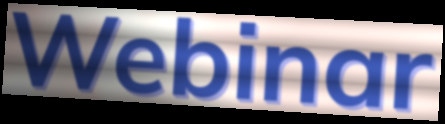
Webinar